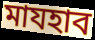
মাযহাব